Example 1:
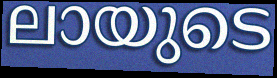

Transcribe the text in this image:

ലായുടെ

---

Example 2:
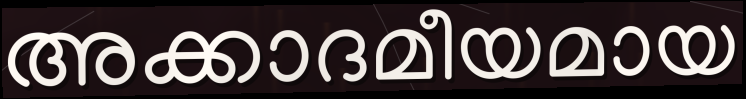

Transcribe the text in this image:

അക്കാദമീയമായ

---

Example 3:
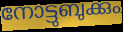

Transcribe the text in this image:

നോട്ടുബുക്കും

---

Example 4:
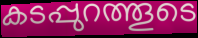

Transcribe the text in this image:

കടപ്പുറത്തൂടെ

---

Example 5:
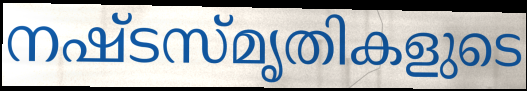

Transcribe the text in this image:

നഷ്ടസ്മൃതികളുടെ